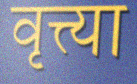
वृत्त्या